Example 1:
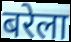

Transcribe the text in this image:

बरेला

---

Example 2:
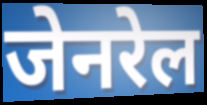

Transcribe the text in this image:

जेनरेल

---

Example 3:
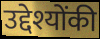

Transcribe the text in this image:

उद्देश्योंकी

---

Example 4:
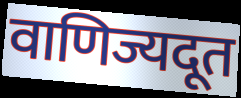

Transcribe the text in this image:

वाणिज्यदूत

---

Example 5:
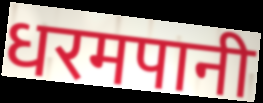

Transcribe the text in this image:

धरमपानी